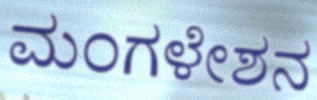
ಮಂಗಳೇಶನ